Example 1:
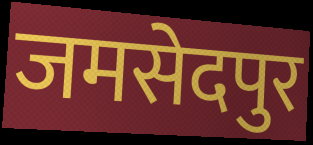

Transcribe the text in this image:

जमसेदपुर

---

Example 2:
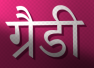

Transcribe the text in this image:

ग्रैडी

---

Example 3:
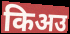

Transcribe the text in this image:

किअउ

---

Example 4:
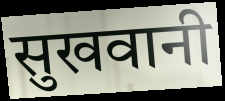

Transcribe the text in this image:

सुखवानी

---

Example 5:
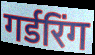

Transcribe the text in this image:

गर्डरिंग